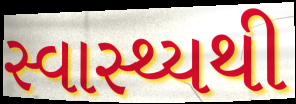
સ્વાસ્થ્યથી